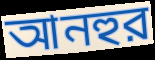
আনহুর